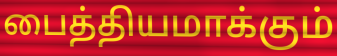
பைத்தியமாக்கும்